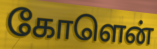
கோளென்